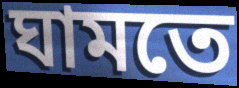
ঘামতে